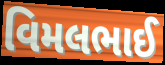
વિમલભાઈ